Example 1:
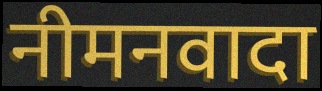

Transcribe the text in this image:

नीमनवादा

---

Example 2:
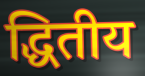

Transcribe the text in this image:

द्धितीय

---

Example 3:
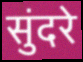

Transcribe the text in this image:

सुंदरे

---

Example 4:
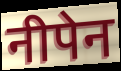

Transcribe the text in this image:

नीपेन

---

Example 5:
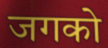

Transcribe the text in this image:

जगको